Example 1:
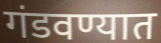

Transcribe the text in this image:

गंडवण्यात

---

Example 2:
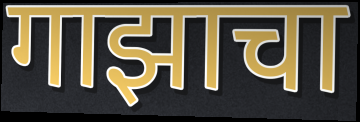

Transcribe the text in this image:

गाझाचा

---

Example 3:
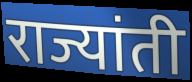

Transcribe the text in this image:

राज्यांती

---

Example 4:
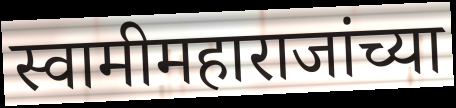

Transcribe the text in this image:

स्वामीमहाराजांच्या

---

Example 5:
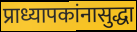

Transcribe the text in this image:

प्राध्यापकांनासुद्धा